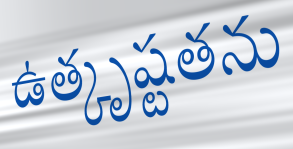
ఉత్కృష్టతను